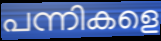
പന്നികളെ